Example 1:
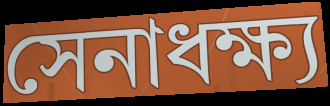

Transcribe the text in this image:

সেনাধক্ষ্য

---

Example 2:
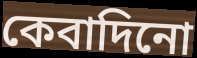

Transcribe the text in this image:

কেবাদিনো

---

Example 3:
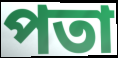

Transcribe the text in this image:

পতা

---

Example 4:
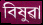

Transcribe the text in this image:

বিষুৱা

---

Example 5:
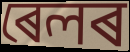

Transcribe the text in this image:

ৰেলৰ